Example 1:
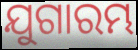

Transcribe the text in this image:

ଯୁଗାରମ୍ଭ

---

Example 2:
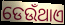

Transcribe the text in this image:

ଡେଉଁଥାଏ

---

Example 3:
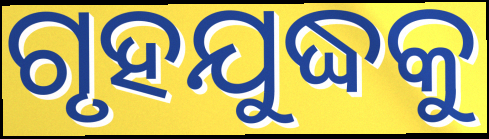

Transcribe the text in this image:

ଗୃହଯୁଦ୍ଧକୁ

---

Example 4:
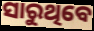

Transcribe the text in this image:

ସାରୁଥିବେ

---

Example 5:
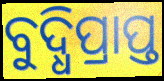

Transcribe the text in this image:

ବୁଦ୍ଧିପ୍ରାପ୍ତ